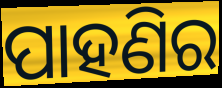
ପାହଣିର